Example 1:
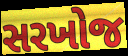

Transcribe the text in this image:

સરખોજ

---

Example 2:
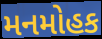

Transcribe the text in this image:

મનમોહક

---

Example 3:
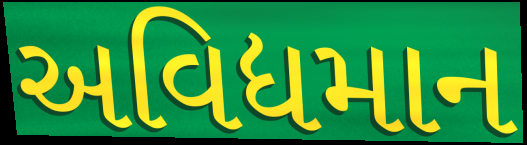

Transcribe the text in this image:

અવિદ્યમાન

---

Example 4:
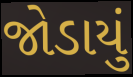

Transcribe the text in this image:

જોડાયું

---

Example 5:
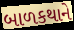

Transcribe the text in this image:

બાળકથાને